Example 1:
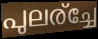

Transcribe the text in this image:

പുലര്ച്ചേ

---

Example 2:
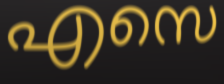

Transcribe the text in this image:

എസെ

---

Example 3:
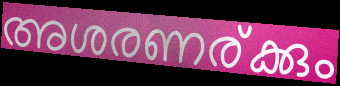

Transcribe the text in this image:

അശരണര്ക്കും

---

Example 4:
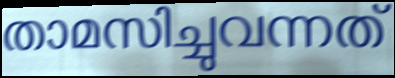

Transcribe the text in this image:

താമസിച്ചുവന്നത്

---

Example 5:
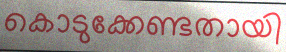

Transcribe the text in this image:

കൊടുക്കേണ്ടതായി